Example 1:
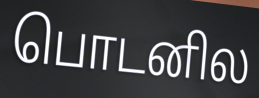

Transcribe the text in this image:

பொடனில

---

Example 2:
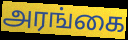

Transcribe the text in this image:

அரங்கை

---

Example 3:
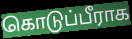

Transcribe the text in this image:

கொடுப்பீராக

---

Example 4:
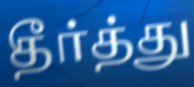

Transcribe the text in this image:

தீர்த்து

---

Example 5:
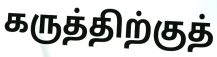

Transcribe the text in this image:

கருத்திற்குத்